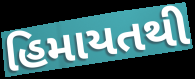
હિમાયતથી